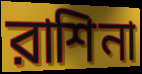
রাশিনা